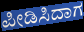
ಪೀಡಿಸಿದಾಗ